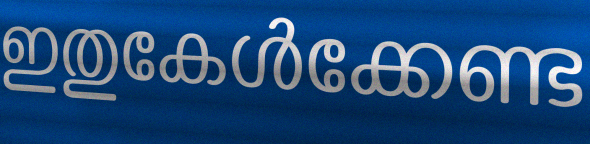
ഇതുകേൾക്കേണ്ട